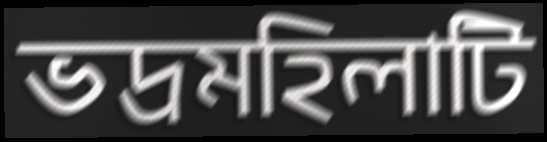
ভদ্রমহিলাটি